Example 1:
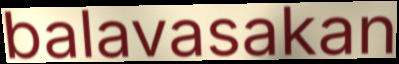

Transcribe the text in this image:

balavasakan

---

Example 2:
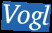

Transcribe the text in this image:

Vogl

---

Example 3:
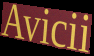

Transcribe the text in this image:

Avicii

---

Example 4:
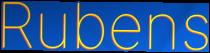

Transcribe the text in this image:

Rubens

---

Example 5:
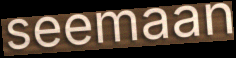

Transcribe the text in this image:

seemaan